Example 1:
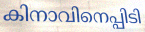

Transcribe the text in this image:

കിനാവിനെപ്പിടി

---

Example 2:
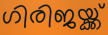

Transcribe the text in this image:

ഗിരിജയ്ക്ക്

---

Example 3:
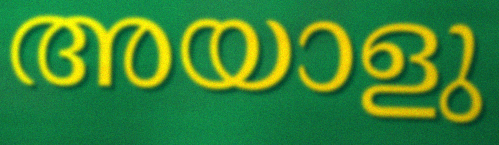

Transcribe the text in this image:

അയാളു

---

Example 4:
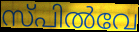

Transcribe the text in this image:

സ്പിൽവേ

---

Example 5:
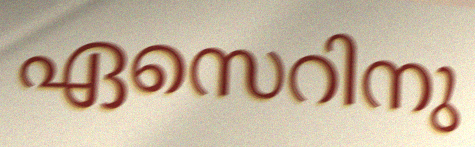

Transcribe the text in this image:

ഏസെറിനു